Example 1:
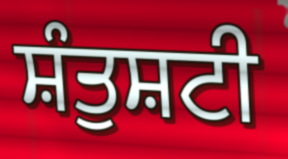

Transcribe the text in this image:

ਸ਼ੰਤੁਸ਼ਟੀ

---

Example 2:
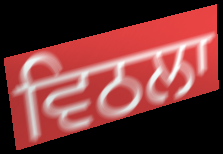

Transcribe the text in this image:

ਵਿਠਲਾ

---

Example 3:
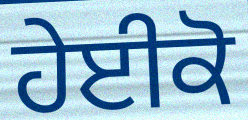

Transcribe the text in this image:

ਹੇਈਕੋ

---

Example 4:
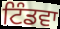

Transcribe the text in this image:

ਟਿੰਡਵਾ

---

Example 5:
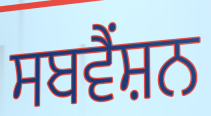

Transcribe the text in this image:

ਸਬਵੈਂਸ਼ਨ